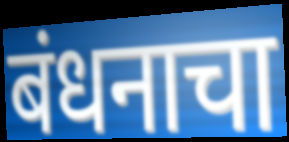
बंधनाचा